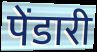
पेंडारी